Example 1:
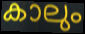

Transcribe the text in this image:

കാലും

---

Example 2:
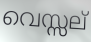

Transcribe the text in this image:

വെസ്സല്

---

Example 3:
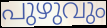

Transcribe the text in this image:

പുഴുവും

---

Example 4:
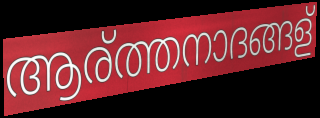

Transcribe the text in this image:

ആര്ത്തനാദങ്ങള്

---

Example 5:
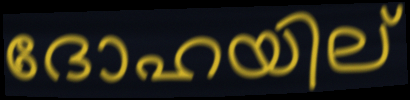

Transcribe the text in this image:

ദോഹയില്